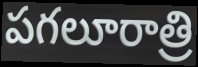
పగలూరాత్రి